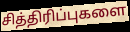
சித்திரிப்புகளை